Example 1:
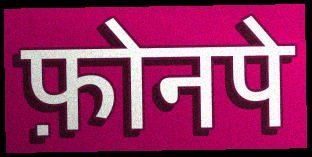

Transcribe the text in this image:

फ़ोनपे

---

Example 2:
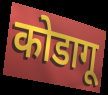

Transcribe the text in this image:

कोडागू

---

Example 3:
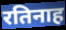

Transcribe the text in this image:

रतिनाह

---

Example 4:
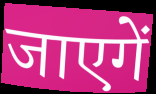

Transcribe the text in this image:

जाएगें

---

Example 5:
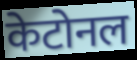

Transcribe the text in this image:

केटोनल